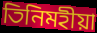
তিনিমহীয়া